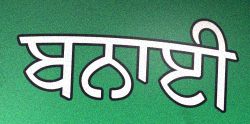
ਬਨਾਈ